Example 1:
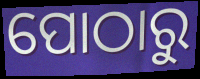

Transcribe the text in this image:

ପୋଠାରୁ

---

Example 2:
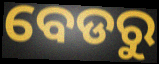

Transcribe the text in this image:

ବେଡରୁ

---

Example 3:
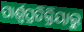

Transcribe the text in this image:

ପାର୍ଶ୍ୱପ୍ରତିକ୍ରିୟାରୁ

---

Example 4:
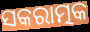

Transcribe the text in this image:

ସକରାତ୍ମକ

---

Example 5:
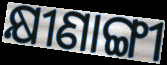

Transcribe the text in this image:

କ୍ଷୀଣାଙ୍ଗୀ